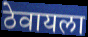
ठेवायला